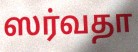
ஸர்வதா